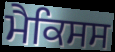
ਮੈਕਿਸਸ